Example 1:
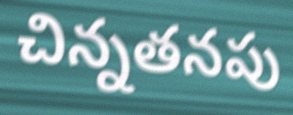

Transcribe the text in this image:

చిన్నతనపు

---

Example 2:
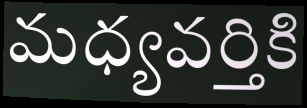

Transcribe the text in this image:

మధ్యవర్తికి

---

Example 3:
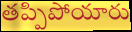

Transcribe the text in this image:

తప్పిపోయారు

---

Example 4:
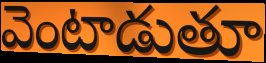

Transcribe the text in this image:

వెంటాడుతూ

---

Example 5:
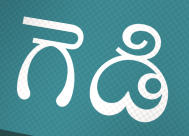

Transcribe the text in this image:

గెడి